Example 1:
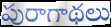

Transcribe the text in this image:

పురాగాథలు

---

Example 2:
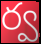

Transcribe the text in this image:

ర్వ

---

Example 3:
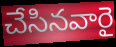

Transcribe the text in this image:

చేసినవారై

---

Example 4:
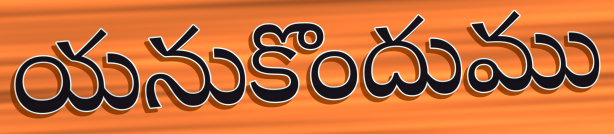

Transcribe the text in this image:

యనుకొందుము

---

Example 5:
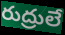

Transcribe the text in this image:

రుద్రులే